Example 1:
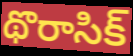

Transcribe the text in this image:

థొరాసిక్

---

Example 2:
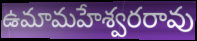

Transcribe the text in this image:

ఉమామహేశ్వరరావు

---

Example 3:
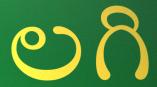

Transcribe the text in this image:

లగి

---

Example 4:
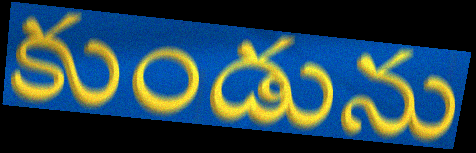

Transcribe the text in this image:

కుండును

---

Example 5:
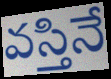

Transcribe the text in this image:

వస్తినే